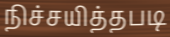
நிச்சயித்தபடி